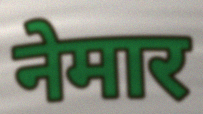
नेमार